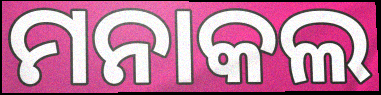
ମନାକଲ